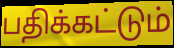
பதிக்கட்டும்